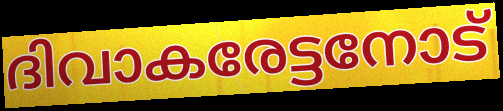
ദിവാകരേട്ടനോട്